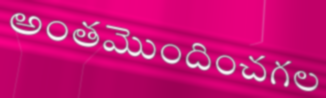
అంతమొందించగల